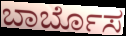
ಬಾರ್ಬೊಸ